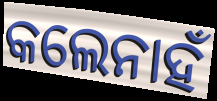
କଲେନାହଁ